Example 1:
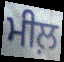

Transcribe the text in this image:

ਮੀਲ਼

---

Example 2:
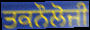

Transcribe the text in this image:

ਤਕਨੌਲੋਜੀ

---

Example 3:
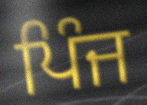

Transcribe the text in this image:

ਪਿੰਜ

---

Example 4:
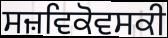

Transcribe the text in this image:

ਸਜ਼ਵਿਕੋਵਸਕੀ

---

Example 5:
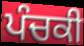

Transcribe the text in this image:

ਪੰਚਕੀ